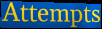
Attempts